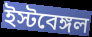
ইস্টবেঙ্গল